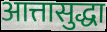
आत्तासुद्धा